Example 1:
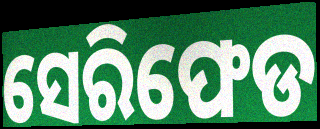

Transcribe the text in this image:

ସେରିଫେଡ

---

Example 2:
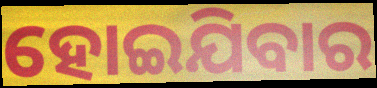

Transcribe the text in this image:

ହୋଇଯିବାର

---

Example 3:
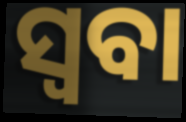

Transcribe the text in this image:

ସ୍ୱବା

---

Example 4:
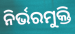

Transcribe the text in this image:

ନିର୍ଭରମୁକ୍ତି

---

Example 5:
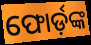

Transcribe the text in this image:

ଫୋର୍ଡ଼ଙ୍କ